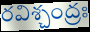
రవిశ్చంద్రః